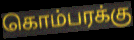
கொம்பரக்கு